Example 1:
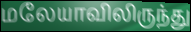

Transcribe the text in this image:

மலேயாவிலிருந்து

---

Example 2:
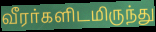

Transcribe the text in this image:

வீரர்களிடமிருந்து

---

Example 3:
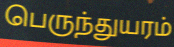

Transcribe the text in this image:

பெருந்துயரம்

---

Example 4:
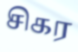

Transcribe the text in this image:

சிகர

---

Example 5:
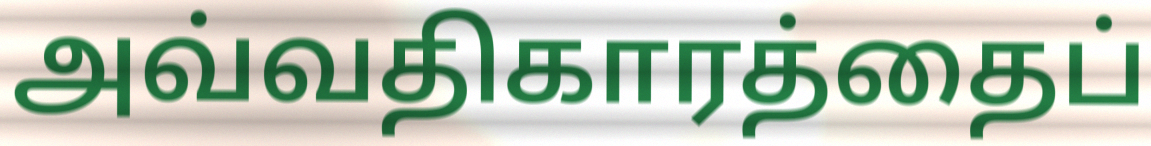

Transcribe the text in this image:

அவ்வதிகாரத்தைப்